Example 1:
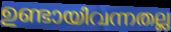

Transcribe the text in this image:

ഉണ്ടായിവന്നതല്ല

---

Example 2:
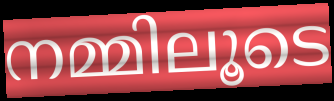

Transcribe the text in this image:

നമ്മിലൂടെ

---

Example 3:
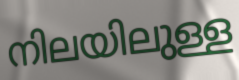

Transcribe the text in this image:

നിലയിലുള്ള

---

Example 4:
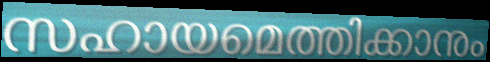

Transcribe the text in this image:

സഹായമെത്തിക്കാനും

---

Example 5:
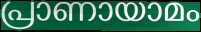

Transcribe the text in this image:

പ്രാണായാമം